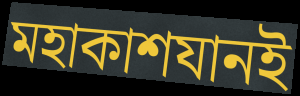
মহাকাশযানই